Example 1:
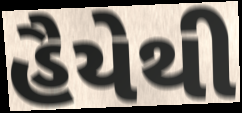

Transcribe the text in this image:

હૈયેથી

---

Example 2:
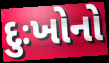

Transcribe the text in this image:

દુઃખોનો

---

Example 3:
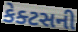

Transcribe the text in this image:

કેક્ટસની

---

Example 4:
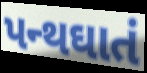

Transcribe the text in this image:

પન્થઘાતં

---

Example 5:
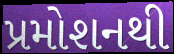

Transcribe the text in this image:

પ્રમોશનથી